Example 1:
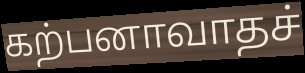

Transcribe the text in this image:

கற்பனாவாதச்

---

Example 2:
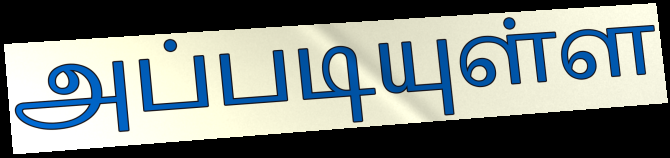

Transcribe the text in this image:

அப்படியுள்ள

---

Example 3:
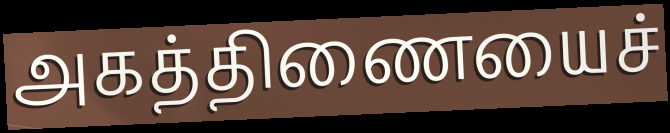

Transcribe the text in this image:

அகத்திணையைச்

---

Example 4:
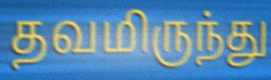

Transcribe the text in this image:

தவமிருந்து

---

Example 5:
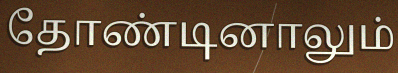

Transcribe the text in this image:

தோண்டினாலும்